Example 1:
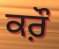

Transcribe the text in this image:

ਕਰ਼ੌ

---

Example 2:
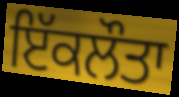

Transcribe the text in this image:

ਇੱਕਲੌਤਾ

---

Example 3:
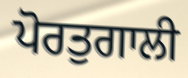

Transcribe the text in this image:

ਪੋਰਤੁਗਾਲੀ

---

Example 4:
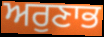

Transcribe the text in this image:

ਅਰੁਣਾਭ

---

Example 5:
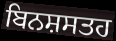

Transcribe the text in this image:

ਬਿਨਸ਼ਸਤਹ